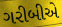
ગરીબીએ